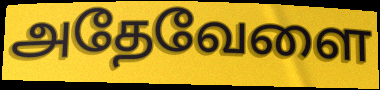
அதேவேளை